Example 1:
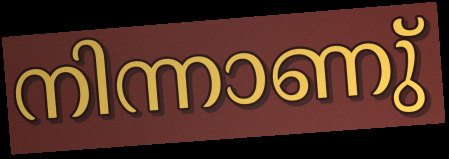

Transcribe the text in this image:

നിന്നാണു്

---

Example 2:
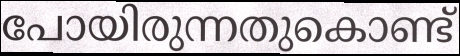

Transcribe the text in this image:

പോയിരുന്നതുകൊണ്ട്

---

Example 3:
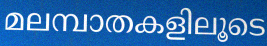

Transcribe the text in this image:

മലമ്പാതകളിലൂടെ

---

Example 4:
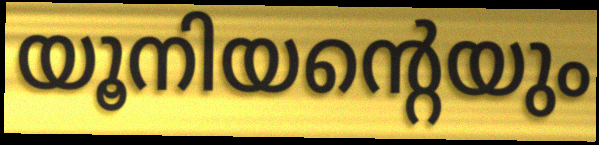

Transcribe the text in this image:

യൂനിയന്റെയും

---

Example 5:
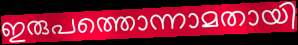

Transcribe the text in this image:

ഇരുപത്തൊന്നാമതായി